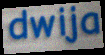
dwija